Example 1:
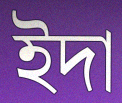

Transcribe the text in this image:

ইদা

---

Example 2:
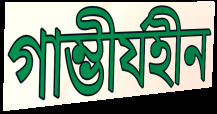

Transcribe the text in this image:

গাম্ভীর্যহীন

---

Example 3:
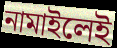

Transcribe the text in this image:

নামাইলেই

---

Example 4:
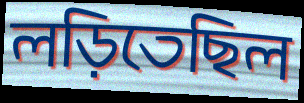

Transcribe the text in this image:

লড়িতেছিল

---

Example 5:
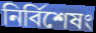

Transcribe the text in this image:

নির্বিশেষং